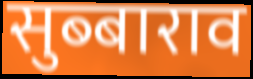
सुब्‍बाराव